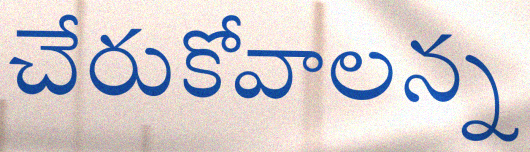
చేరుకోవాలన్న